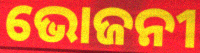
ଭୋଜନୀ